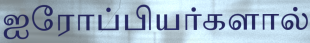
ஐரோப்பியர்களால்